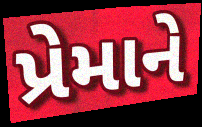
પ્રેમાને